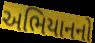
અભિયાનનો